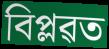
বিপ্লৱত